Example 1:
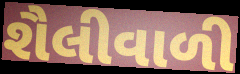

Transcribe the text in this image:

શૈલીવાળી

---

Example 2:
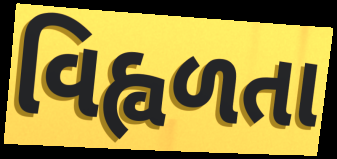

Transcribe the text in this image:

વિહ્વળતા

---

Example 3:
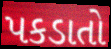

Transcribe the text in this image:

પકડાતો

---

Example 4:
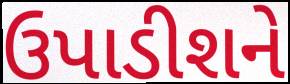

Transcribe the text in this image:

ઉપાડીશને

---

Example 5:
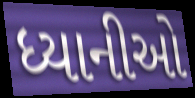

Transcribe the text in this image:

ધ્યાનીઓ